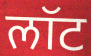
लॉट